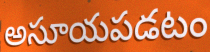
అసూయపడటం